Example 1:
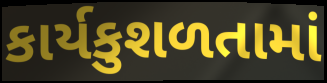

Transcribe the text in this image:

કાર્યકુશળતામાં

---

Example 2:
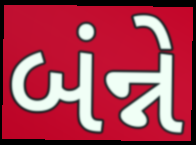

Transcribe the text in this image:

બંન્ને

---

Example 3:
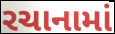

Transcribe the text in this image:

રચાનામાં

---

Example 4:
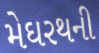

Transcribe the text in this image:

મેઘરથની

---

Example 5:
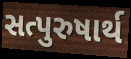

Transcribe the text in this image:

સત્પુરુષાર્થ